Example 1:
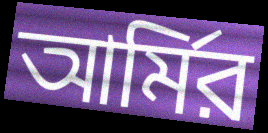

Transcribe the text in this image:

আর্মির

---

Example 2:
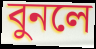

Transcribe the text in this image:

বুনলে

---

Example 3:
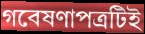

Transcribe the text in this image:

গবেষণাপত্রটিই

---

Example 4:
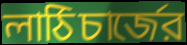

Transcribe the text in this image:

লাঠিচার্জের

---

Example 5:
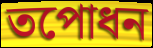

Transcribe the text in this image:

তপোধন